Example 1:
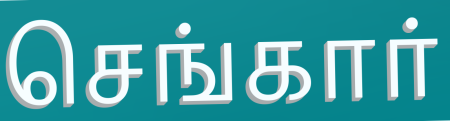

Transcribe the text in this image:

செங்கார்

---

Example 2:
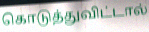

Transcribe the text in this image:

கொடுத்துவிட்டால்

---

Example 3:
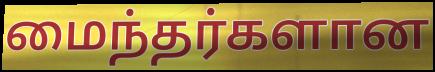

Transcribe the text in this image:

மைந்தர்களான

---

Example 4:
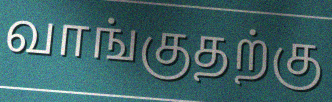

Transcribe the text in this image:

வாங்குதற்கு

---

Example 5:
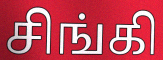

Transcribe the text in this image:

சிங்கி